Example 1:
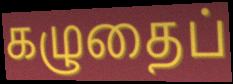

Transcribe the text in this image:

கழுதைப்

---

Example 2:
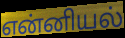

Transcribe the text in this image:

என்னியல்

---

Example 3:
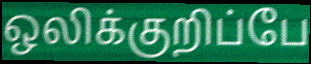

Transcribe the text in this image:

ஒலிக்குறிப்பே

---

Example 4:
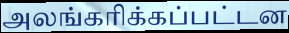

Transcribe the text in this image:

அலங்கரிக்கப்பட்டன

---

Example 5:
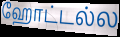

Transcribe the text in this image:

ஹோட்டல்ல